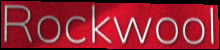
Rockwool